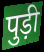
पुड़ी